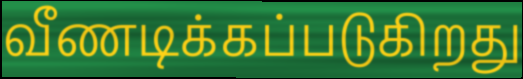
வீணடிக்கப்படுகிறது